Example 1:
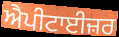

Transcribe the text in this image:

ਐਪੀਟਾਈਜ਼ਰ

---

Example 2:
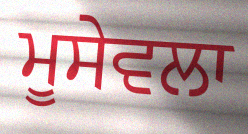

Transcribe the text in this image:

ਮੂਸੇਵਲਾ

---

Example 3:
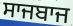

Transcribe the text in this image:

ਸਾਜਬਾਜ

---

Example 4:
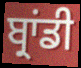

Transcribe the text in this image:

ਬ੍ਰਾਂਡੀ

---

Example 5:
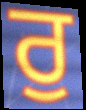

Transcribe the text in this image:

ਰੁ